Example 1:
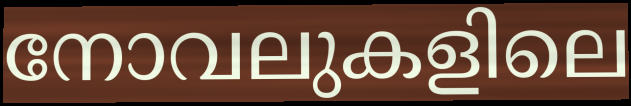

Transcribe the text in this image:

നോവലുകളിലെ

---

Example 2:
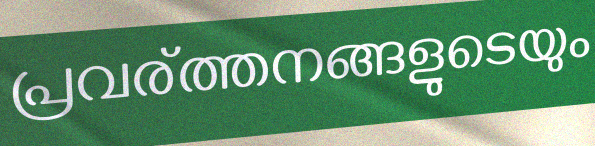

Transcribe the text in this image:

പ്രവര്ത്തനങ്ങളുടെയും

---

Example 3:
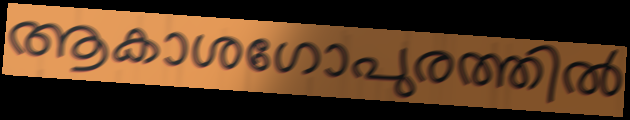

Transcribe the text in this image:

ആകാശഗോപുരത്തിൽ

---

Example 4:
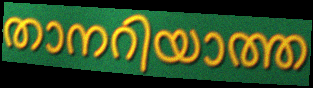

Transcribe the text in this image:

താനറിയാത്ത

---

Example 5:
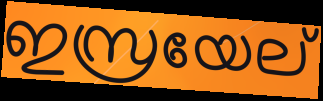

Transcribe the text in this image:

ഇസ്രയേല്